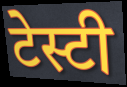
टेस्टी